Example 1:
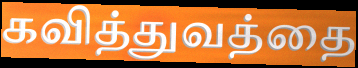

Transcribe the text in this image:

கவித்துவத்தை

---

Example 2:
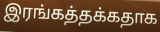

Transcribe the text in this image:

இரங்கத்தக்கதாக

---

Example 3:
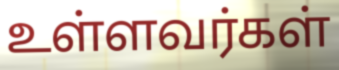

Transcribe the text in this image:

உள்ளவர்கள்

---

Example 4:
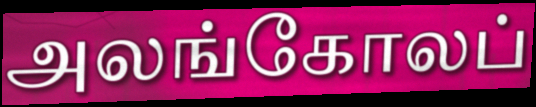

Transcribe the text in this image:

அலங்கோலப்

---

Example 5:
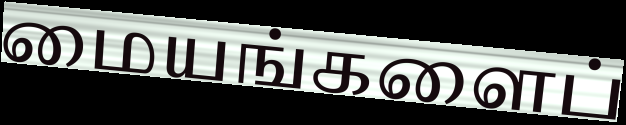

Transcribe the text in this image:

மையங்களைப்